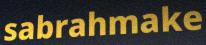
sabrahmake